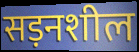
सड़नशील